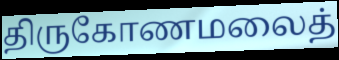
திருகோணமலைத்